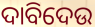
ଦାବିଦେଉ